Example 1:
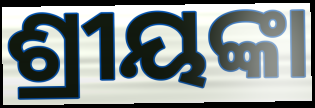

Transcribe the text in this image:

ଶ୍ରୀୟଙ୍କା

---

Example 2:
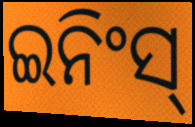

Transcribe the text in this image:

ଇନିଂସ୍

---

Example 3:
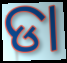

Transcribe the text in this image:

ଡା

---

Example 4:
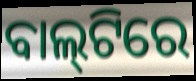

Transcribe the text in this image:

ବାଲ୍‌ଟିରେ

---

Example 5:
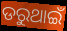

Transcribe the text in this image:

ଡରୁଥାଇଁ